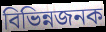
বিভিন্নজনক